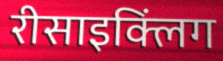
रीसाइक्लिंग